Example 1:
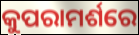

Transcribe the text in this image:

କୁପରାମର୍ଶରେ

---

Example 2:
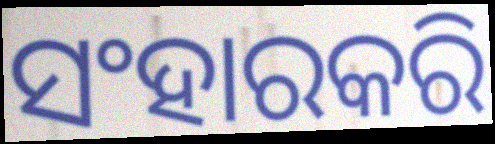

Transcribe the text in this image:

ସଂହାରକରି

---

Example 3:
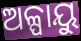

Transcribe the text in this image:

ଅଳ୍ପାୟୁ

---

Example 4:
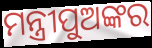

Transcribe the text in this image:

ମନ୍ତ୍ରୀପୁଅଙ୍କର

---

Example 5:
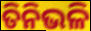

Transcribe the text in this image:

ତିନିଭଳି